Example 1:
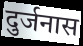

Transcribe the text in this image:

दुर्जनास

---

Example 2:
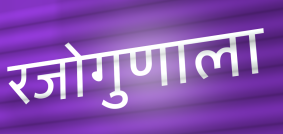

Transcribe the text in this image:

रजोगुणाला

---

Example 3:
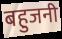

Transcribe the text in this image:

बहुजनी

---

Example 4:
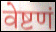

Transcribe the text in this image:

वेष्टणं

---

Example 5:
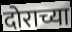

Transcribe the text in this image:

दोराच्या